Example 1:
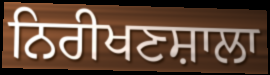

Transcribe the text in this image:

ਨਿਰੀਖਣਸ਼ਾਲਾ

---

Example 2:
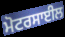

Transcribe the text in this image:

ਮੋਟਰਸਾਈਲ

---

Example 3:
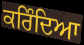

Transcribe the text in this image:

ਕਰਿੰਦਿਆ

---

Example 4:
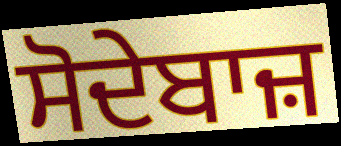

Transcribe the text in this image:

ਸੋਦੇਬਾਜ਼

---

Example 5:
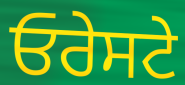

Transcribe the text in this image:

ਓਰੇਸਟੇ